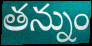
తన్నుం